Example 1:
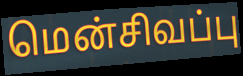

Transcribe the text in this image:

மென்சிவப்பு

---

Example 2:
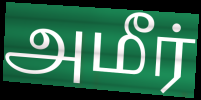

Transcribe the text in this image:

அமீர்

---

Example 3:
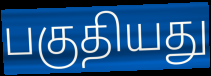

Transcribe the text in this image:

பகுதியது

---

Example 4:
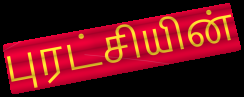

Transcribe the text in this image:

புரட்சியின்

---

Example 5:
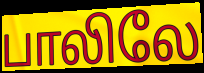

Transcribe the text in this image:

பாலிலே